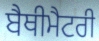
ਬੈਥੀਮੈਟਰੀ